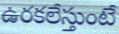
ఉరకలేస్తుంటే